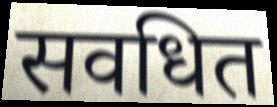
सवधित